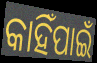
କାହିଁପାଇଁ